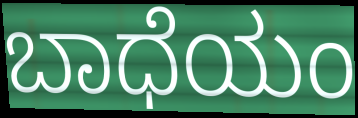
ಬಾಧೆಯಂ